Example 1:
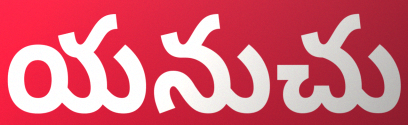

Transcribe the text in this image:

యనుచు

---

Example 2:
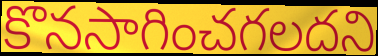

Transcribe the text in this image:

కొనసాగించగలదని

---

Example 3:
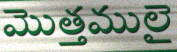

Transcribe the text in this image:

మొత్తములై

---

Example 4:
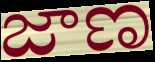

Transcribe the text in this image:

జాణ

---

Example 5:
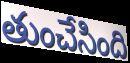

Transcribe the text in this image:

తుంచేసింది